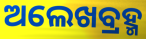
ଅଲେଖବ୍ରହ୍ମ